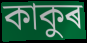
কাকুৰ